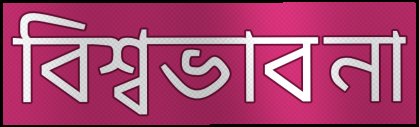
বিশ্বভাবনা